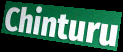
Chinturu